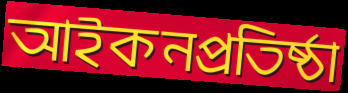
আইকনপ্রতিষ্ঠা